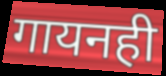
गायनही